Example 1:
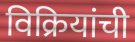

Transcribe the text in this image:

विक्रियांची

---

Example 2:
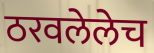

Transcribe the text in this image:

ठरवलेलेच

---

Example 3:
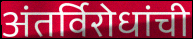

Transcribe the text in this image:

अंतर्विरोधांची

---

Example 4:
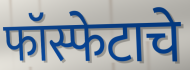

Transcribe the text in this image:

फॉस्फेटाचे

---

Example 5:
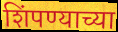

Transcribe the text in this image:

शिंपण्याच्या